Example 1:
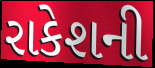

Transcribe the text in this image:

રાકેશની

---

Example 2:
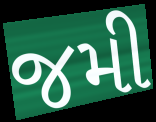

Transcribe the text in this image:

જમી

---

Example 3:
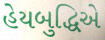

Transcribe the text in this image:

હેયબુદ્ધિએ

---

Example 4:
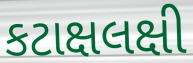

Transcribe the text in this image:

કટાક્ષલક્ષી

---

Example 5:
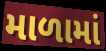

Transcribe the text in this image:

માળામાં